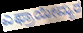
ಎಫ್ರಾಯೀಮ್ಯರ